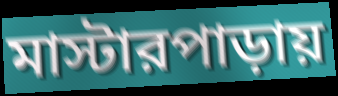
মাস্টারপাড়ায়